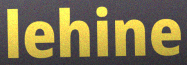
lehine